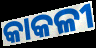
କାକଳୀ